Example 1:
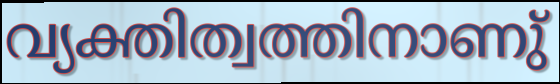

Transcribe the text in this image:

വ്യക്തിത്വത്തിനാണു്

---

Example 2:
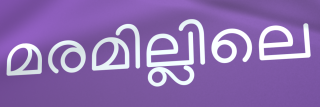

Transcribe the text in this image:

മരമില്ലിലെ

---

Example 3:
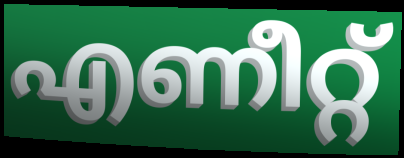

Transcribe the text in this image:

എണീറ്റ്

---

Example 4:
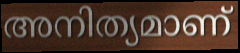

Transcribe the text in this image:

അനിത്യമാണ്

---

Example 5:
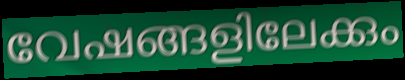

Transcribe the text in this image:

വേഷങ്ങളിലേക്കും